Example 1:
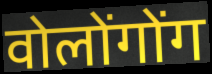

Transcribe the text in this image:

वोलोंगोंग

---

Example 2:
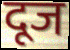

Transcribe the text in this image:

दूज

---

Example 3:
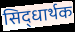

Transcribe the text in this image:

सिद्धार्थक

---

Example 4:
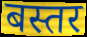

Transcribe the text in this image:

बस्तर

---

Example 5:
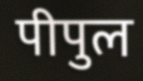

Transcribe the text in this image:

पीपुल